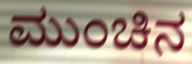
ಮುಂಚಿನ